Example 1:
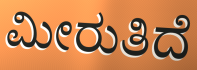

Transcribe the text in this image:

ಮೀರುತಿದೆ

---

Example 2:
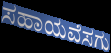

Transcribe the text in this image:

ಸಹಾಯವೆಸಗು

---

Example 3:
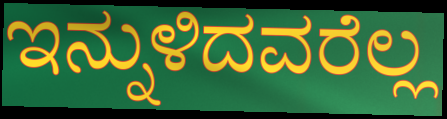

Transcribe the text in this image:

ಇನ್ನುಳಿದವರೆಲ್ಲ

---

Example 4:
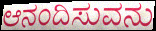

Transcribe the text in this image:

ಆನಂದಿಸುವನು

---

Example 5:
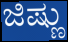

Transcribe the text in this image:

ಜಿಷ್ಣು